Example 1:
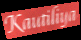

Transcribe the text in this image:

Kautiliya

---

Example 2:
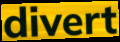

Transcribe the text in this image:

divert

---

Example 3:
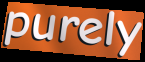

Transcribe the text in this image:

purely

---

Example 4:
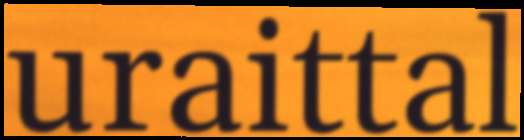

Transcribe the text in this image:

uraittal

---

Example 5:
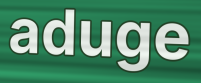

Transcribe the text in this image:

aduge